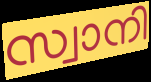
സ്വാനി